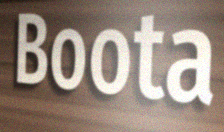
Boota